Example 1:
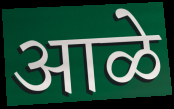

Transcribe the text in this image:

आळे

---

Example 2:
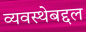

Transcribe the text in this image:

व्यवस्थेबद्दल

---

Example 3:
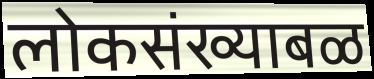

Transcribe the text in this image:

लोकसंख्याबळ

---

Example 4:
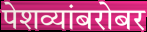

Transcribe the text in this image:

पेशव्यांबरोबर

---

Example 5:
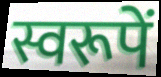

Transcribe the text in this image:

स्वरूपें